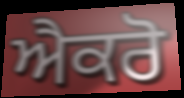
ਐਕਰੋ